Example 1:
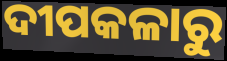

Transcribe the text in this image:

ଦୀପକଳାରୁ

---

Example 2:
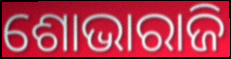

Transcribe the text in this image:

ଶୋଭାରାଜି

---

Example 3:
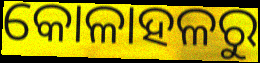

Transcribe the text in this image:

କୋଳାହଳରୁ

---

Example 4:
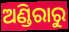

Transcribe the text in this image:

ଅଣ୍ଡିରାରୁ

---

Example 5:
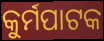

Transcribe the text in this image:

କୁର୍ମପାଟକ